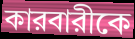
কারবারীকে